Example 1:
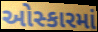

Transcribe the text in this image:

ઓસ્કારમાં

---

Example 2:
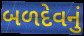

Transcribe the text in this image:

બળદેવનું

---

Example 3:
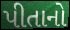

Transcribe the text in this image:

પીતાનો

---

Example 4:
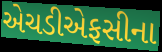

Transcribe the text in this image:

એચડીએફસીના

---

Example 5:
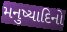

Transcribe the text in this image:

મનુષ્યાદિનો